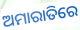
ଅମାରାତିରେ